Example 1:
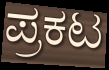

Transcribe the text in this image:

ಪ್ರಕಟ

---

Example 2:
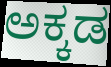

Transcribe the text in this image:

ಅಕ್ಕಡ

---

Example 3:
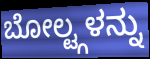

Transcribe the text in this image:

ಬೋಲ್ಟ್ಗಳನ್ನು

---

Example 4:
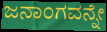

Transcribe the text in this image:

ಜನಾಂಗವನ್ನೇ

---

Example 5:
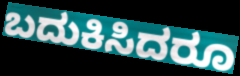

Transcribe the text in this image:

ಬದುಕಿಸಿದರೂ